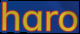
haro